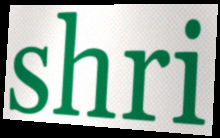
shri